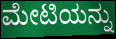
ಮೇಟಿಯನ್ನು